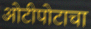
ओटीपोटाचा